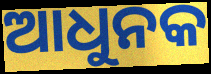
ଆଧୁନକ